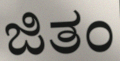
ಜಿತಂ